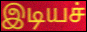
இடியச்